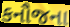
કનૌજના